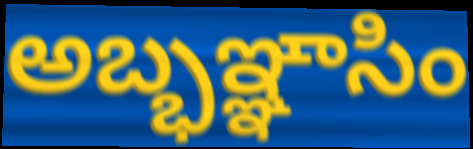
అబ్భఞ్ఞాసిం